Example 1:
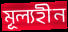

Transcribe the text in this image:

মূল্যহীন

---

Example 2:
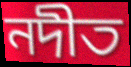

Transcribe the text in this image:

নদীত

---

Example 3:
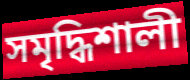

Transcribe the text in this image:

সমৃদ্ধিশালী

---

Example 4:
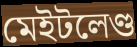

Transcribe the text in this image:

মেইটলেণ্ড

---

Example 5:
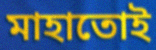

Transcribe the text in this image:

মাহাতোই